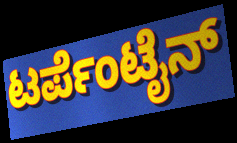
ಟರ್ಪೆಂಟೈನ್